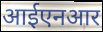
आईएनआर